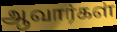
ஆவார்கள்